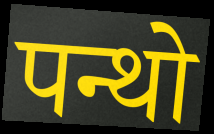
पन्थो